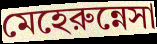
মেহেরুন্নেসা